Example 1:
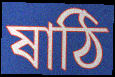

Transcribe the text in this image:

ষাঠি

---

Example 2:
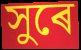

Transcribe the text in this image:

সুৰে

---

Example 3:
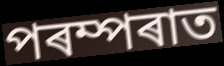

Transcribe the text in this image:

পৰম্পৰাত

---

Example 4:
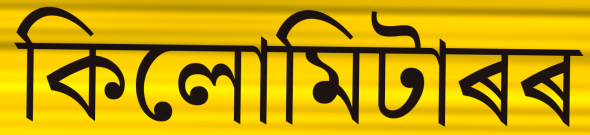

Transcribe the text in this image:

কিলোমিটাৰৰ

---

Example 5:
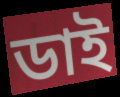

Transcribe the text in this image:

ডাই